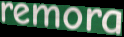
remora